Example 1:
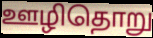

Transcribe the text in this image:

ஊழிதொறு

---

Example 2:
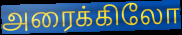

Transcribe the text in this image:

அரைக்கிலோ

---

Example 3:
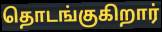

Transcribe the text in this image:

தொடங்குகிறார்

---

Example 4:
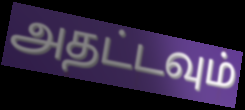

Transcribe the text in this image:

அதட்டவும்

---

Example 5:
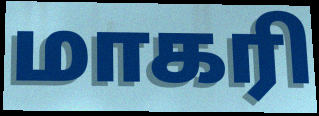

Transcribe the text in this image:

மாகரி